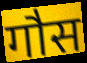
गौस